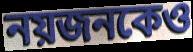
নয়জনকেও